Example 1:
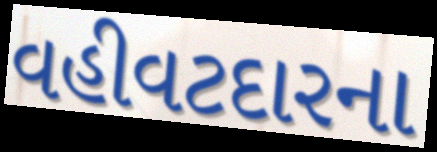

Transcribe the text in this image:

વહીવટદારના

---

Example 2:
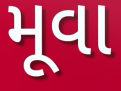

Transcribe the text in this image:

મૂવા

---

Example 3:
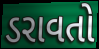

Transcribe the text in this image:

ડરાવતો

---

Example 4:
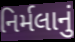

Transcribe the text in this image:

નિર્મલાનું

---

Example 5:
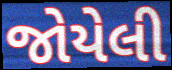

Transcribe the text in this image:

જોયેલી